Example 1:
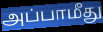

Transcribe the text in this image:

அப்பாமீது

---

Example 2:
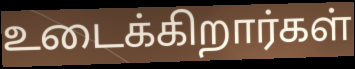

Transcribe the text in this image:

உடைக்கிறார்கள்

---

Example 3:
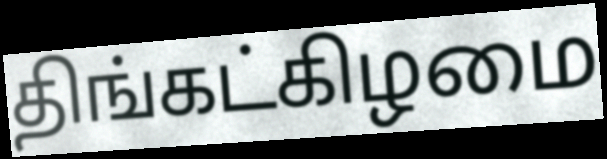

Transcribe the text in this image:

திங்கட்கிழமை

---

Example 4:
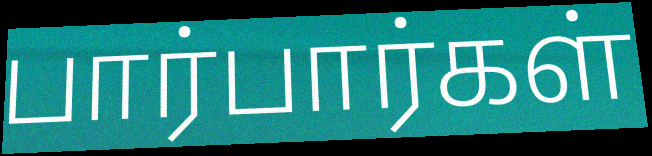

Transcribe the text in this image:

பார்பார்கள்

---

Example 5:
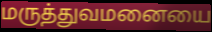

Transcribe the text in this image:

மருத்துவமனையை